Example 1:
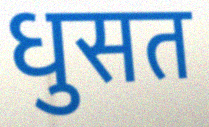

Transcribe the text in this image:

धुसत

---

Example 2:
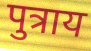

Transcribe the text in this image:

पुत्राय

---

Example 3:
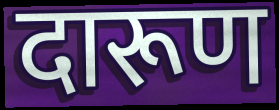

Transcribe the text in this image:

दारूण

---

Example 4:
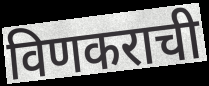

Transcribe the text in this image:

विणकराची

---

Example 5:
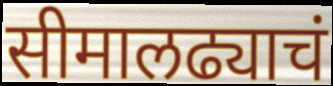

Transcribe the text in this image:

सीमालढ्याचं